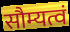
सौम्यत्वं